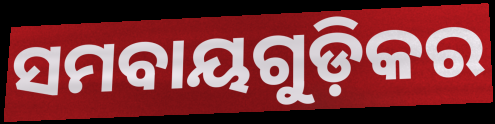
ସମବାୟଗୁଡ଼ିକର